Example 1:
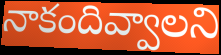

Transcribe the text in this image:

నాకందివ్వాలని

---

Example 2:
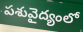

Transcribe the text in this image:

పశువైద్యంలో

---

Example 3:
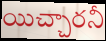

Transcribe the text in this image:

యిచ్చారనీ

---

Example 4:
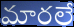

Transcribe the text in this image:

మారలే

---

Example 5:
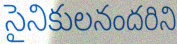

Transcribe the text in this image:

సైనికులనందరిని